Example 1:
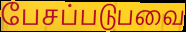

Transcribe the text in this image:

பேசப்படுபவை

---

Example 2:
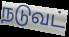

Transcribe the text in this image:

நடுவட்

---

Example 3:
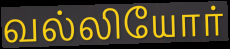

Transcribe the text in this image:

வல்லியோர்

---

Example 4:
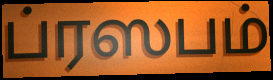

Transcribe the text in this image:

ப்ரஸபம்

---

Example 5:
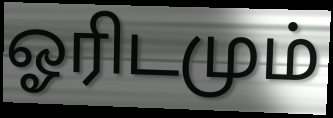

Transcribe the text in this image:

ஓரிடமும்